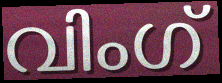
വിംഗ്